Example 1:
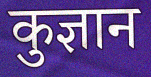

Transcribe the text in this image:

कुज्ञान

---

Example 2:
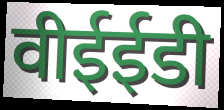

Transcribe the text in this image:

वीईईडी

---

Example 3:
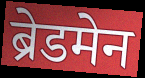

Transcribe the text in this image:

ब्रेडमेन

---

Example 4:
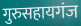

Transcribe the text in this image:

गुरुसहायगंज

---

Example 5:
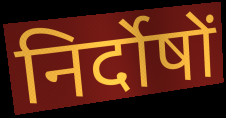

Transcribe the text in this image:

निर्दोषों